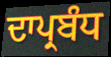
ਦਾਪ੍ਰਬੰਧ